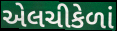
એલચીકેળાં